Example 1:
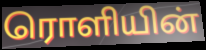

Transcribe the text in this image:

ரொளியின்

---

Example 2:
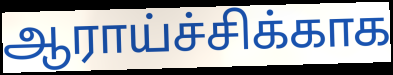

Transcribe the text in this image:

ஆராய்ச்சிக்காக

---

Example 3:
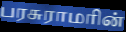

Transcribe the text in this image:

பரசுராமரின்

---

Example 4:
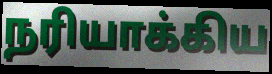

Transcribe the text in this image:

நரியாக்கிய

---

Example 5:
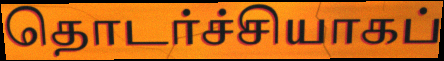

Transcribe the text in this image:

தொடர்ச்சியாகப்